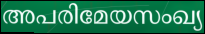
അപരിമേയസംഖ്യ